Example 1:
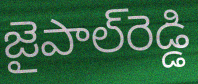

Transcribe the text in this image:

జైపాల్‌రెడ్డి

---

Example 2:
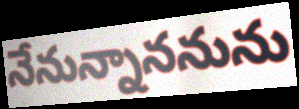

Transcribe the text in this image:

నేనున్నాననును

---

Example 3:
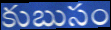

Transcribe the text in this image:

కుబుసం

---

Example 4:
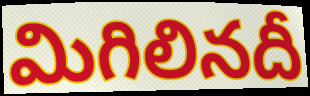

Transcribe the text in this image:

మిగిలినదీ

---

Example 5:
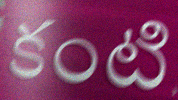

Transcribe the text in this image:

కంటి